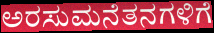
ಅರಸುಮನೆತನಗಳಿಗೆ